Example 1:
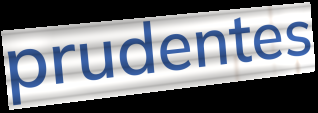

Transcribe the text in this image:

prudentes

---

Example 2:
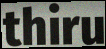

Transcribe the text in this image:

thiru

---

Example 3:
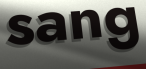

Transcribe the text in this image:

sang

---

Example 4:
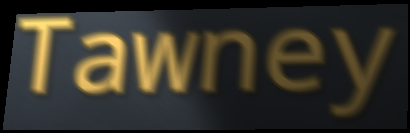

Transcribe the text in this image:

Tawney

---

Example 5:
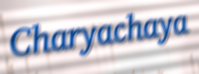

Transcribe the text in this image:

Charyachaya